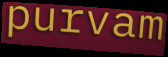
purvam